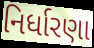
નિર્ધારણા